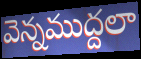
వెన్నముద్దలా